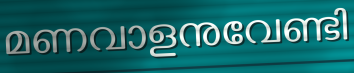
മണവാളനുവേണ്ടി